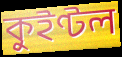
কুইণ্টল